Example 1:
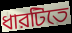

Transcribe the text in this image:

ধারটিতে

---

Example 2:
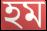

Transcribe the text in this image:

হম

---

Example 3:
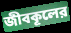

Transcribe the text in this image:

জীবকূলের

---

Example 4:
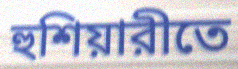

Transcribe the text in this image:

হুশিয়ারীতে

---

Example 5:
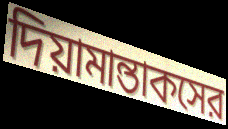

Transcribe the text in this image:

দিয়ামান্তাকসের